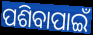
ପଶିବାପାଇଁ